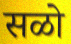
सळो